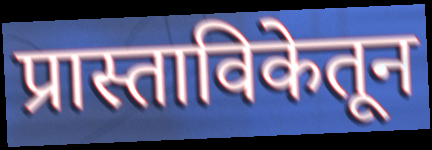
प्रास्ताविकेतून